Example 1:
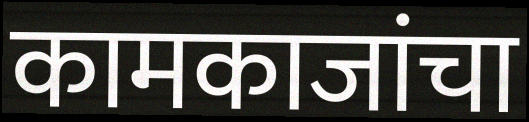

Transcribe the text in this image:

कामकाजांचा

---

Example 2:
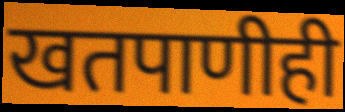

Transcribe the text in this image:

खतपाणीही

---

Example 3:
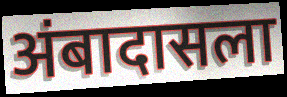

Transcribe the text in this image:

अंबादासला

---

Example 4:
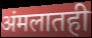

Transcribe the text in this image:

अंमलातही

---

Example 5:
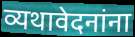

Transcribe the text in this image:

व्यथावेदनांना